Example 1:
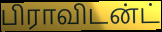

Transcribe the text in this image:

பிராவிடன்ட்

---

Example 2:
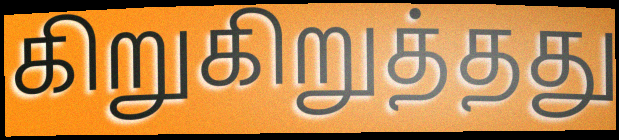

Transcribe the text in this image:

கிறுகிறுத்தது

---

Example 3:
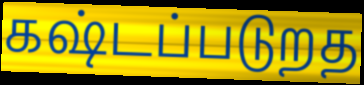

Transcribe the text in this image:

கஷ்டப்படுறத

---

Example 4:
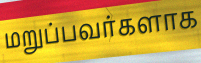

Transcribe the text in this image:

மறுப்பவர்களாக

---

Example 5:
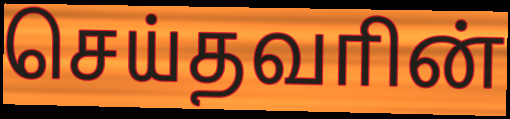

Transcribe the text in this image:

செய்தவரின்